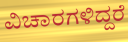
ವಿಚಾರಗಳಿದ್ದರೆ